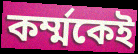
কর্ম্মকেই